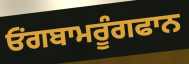
ਓਂਗਬਾਮਰੂੰਗਫਾਨ